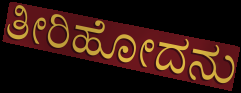
ತೀರಿಹೋದನು